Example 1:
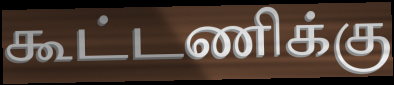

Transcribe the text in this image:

கூட்டணிக்கு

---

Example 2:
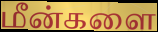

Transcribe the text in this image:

மீன்களை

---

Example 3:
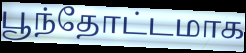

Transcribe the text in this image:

பூந்தோட்டமாக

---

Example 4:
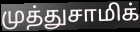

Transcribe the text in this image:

முத்துசாமிக்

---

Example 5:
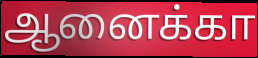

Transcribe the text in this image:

ஆனைக்கா